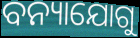
ବନ୍ୟାଯୋଗୁ